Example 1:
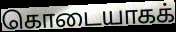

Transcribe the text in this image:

கொடையாகக்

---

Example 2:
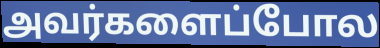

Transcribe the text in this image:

அவர்களைப்போல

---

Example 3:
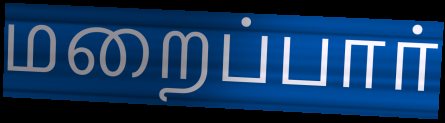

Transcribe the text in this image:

மறைப்பார்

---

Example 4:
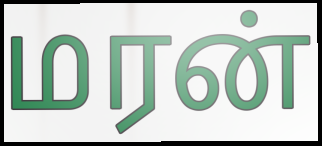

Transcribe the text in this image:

மரன்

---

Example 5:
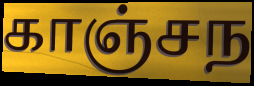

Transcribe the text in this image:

காஞ்சந